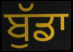
ਬੁੱਡਾ